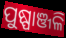
ପୁଷ୍ପାଞ୍ଜଳି